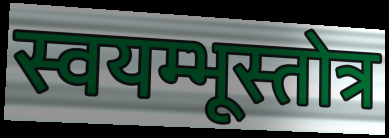
स्वयम्भूस्तोत्र